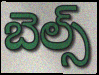
బెల్స్